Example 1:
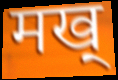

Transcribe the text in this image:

मख्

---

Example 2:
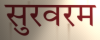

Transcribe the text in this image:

सुरवरम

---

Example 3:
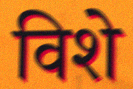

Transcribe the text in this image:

विशे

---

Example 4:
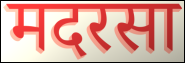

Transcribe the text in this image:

मदरसा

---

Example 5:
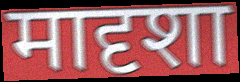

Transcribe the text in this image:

मादृशा